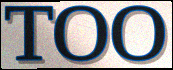
TOO